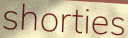
shorties